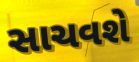
સાચવશે